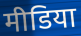
मीडिया